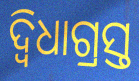
ଦ୍ୱିଧାଗ୍ରସ୍ତ